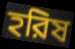
হরিষ